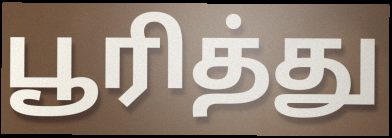
பூரித்து